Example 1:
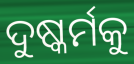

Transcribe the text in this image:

ଦୁଷ୍କର୍ମକୁ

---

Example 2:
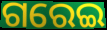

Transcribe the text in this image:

ଗରେଇ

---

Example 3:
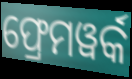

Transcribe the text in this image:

ଫ୍ରେମୱର୍କ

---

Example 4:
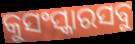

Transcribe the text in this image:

କୁସଂସ୍କାରସବୁ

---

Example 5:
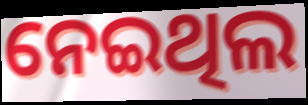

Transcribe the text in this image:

ନେଇଥିଲ